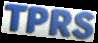
TPRS